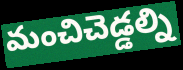
మంచిచెడ్డల్ని